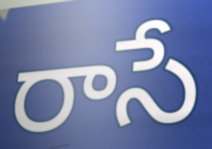
రాసే